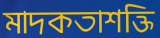
মাদকতাশক্তি